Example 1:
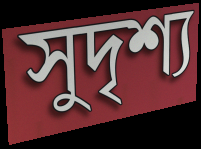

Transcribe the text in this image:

সুদৃশ্য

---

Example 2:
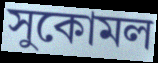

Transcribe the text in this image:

সুকোমল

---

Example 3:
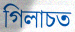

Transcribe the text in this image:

গিলাচত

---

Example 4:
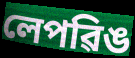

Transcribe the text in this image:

লেপৱিঙ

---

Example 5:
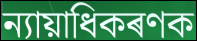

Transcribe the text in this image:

ন্যায়াধিকৰণক